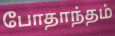
போதாந்தம்